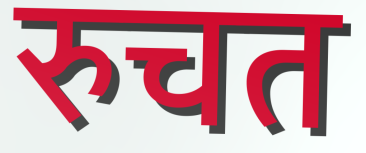
रुचत